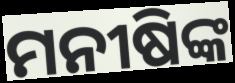
ମନୀଷିଙ୍କ